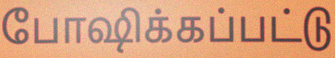
போஷிக்கப்பட்டு